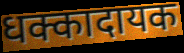
धक्कादायक